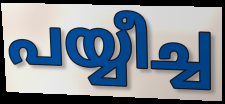
പയ്യീച്ച